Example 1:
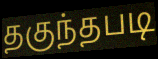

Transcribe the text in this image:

தகுந்தபடி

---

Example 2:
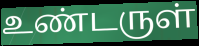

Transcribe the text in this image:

உண்டருள்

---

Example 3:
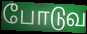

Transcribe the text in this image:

போடுவ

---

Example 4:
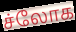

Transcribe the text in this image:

ச்லோக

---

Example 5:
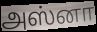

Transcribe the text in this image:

அஸ்னா